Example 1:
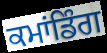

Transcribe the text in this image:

ਕਮਾਂਡਿੰਗ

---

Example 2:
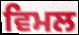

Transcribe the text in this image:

ਵਿਮਲ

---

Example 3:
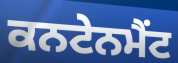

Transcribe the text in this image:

ਕਨਟੇਨਮੈਂਟ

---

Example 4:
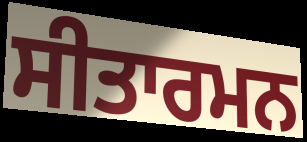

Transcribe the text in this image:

ਸੀਤਾਰਮਨ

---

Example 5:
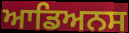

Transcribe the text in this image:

ਆਡਿਅਨਸ